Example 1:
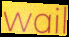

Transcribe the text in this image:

wail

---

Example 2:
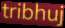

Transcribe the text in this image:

tribhuj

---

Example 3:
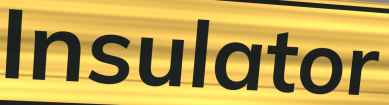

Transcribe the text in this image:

Insulator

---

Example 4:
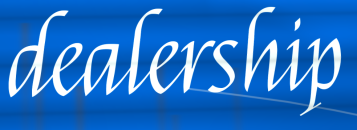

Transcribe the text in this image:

dealership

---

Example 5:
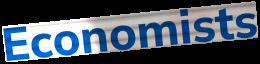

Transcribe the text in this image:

Economists